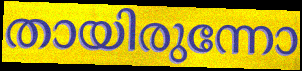
തായിരുന്നോ